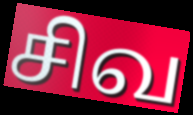
சிவ